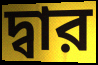
দ্বার